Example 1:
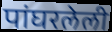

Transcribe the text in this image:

पांघरलेली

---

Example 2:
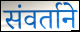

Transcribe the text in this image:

संवर्ताने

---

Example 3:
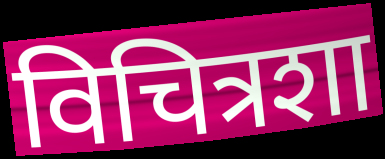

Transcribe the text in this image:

विचित्रशा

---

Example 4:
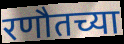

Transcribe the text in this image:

रणौतच्या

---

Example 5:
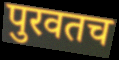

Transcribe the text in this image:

पुरवतच